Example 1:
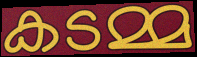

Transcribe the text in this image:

കടമ്മ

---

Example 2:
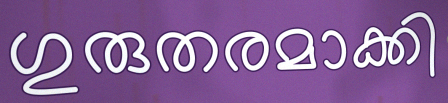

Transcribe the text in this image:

ഗുരുതരമാക്കി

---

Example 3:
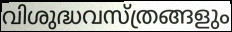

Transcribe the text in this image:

വിശുദ്ധവസ്ത്രങ്ങളും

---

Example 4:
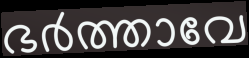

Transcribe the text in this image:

ഭർത്താവേ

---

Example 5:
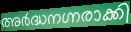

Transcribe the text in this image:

അർദ്ധനഗ്നരാക്കി